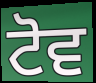
ਟੋਵ